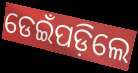
ଡେଇଁପଡ଼ିଲେ